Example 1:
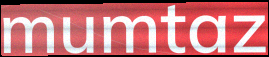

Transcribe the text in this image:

mumtaz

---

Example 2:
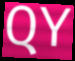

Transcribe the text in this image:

QY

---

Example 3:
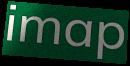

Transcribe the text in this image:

imap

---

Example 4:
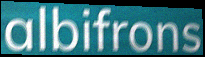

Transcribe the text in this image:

albifrons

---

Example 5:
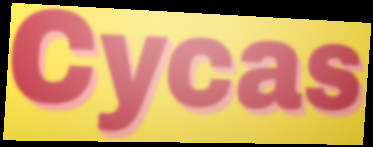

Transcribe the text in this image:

Cycas